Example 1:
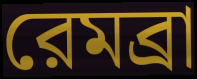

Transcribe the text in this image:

রেমব্রা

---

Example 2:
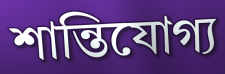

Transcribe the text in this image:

শান্তিযোগ্য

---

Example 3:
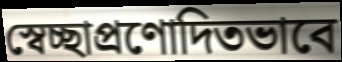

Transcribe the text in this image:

স্বেচ্ছাপ্রণোদিতভাবে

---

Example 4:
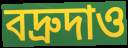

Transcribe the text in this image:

বদ্রুদাও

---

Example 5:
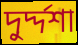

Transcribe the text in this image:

দুর্দ্দশা